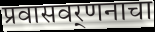
प्रवासवर्णनाचा